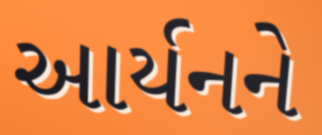
આર્યનને